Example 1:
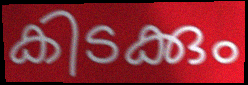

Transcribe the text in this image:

കിടക്കും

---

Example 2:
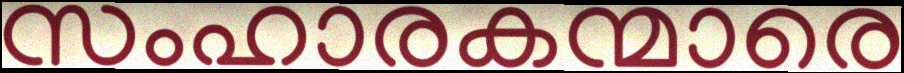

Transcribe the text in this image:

സംഹാരകന്മാരെ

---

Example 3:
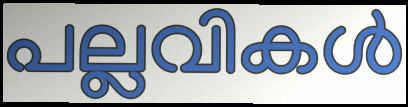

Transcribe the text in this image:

പല്ലവികൾ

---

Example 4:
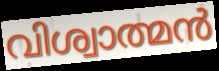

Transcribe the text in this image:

വിശ്വാത്മൻ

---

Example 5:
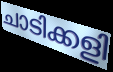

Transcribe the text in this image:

ചാടിക്കളി